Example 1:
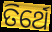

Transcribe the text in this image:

ତିର୍ଥେ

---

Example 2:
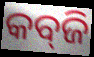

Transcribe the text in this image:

କବ୍‍ଜି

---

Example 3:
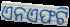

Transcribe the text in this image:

ଏନଏଫଟି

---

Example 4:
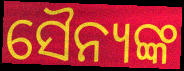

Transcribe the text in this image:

ସୈନ୍ୟଙ୍କ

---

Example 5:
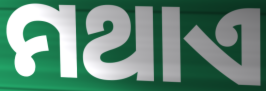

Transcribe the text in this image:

ମଥାଏ